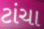
ટાંચા